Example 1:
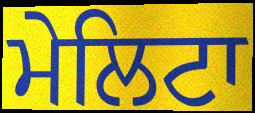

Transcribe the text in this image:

ਮੇਲਿਟਾ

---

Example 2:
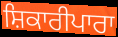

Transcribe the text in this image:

ਸ਼ਿਕਾਰੀਪਾਰਾ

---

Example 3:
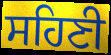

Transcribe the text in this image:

ਸਹਿਣੀ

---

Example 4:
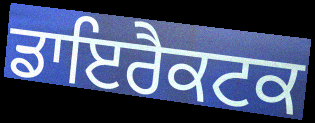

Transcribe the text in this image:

ਡਾਇਰੈਕਟਕ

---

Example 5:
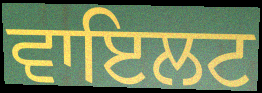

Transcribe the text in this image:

ਵਾਇਲਟ